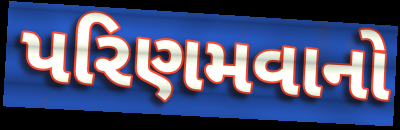
પરિણમવાનો